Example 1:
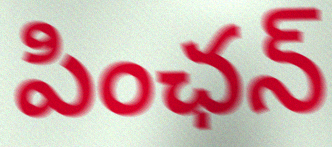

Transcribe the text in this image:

పింఛన్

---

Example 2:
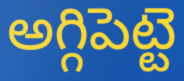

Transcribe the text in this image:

అగ్గిపెట్టె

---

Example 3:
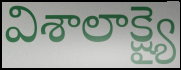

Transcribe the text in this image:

విశాలాక్ష్యై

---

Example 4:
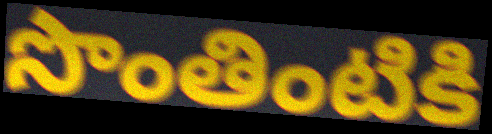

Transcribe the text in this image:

సొంతింటికి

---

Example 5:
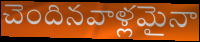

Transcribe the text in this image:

చెందినవాళ్లమైనా